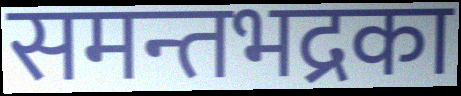
समन्तभद्रका